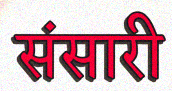
संसारी